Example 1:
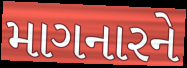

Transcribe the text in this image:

માગનારને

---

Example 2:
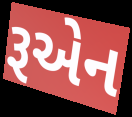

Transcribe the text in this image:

રૂએન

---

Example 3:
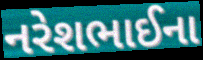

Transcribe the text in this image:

નરેશભાઈના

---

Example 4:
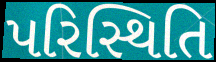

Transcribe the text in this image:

પરિસ્થિતિ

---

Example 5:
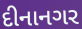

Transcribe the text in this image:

દીનાનગર